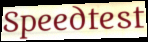
Speedtest